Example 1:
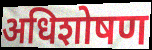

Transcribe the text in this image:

अधिशोषण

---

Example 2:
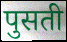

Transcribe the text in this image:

पुसती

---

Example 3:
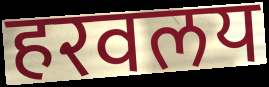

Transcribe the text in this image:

हरवलय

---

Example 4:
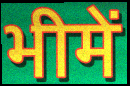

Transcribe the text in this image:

भीमें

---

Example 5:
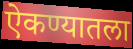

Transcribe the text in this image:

ऐकण्यातला